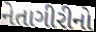
નેતાગીરીનો